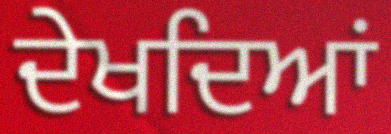
ਦੇਖਦਿਆਂ